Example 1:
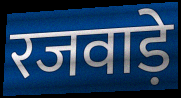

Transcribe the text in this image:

रजवाड़े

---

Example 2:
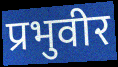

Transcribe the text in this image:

प्रभुवीर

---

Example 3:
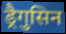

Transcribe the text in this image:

ड्रैगुसिन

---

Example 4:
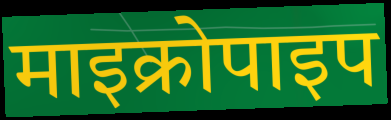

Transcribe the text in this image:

माइक्रोपाइप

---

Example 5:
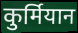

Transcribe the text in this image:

कुर्मियान